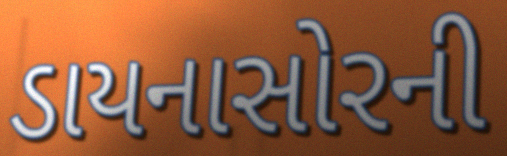
ડાયનાસોરની